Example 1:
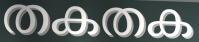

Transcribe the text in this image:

തകതക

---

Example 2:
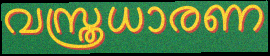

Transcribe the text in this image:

വസ്ത്രധാരണ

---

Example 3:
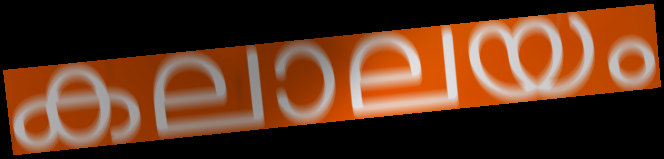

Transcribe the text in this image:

കലാലയം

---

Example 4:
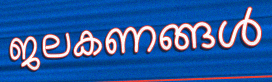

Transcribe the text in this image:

ജലകണങ്ങൾ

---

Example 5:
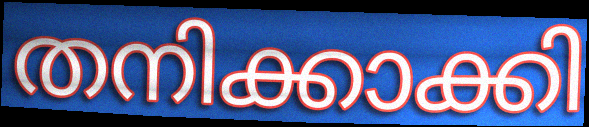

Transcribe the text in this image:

തനിക്കാക്കി